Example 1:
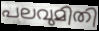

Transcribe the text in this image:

പലവുമിതി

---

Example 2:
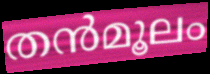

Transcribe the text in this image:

തൻമൂലം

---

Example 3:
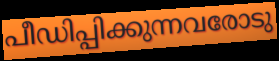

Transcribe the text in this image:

പീഡിപ്പിക്കുന്നവരോടു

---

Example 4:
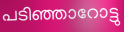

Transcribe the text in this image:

പടിഞ്ഞാറോട്ടു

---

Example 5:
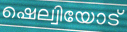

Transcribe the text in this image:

ഷെല്വിയോട്